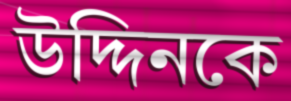
উদ্দিনকে